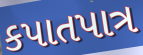
કપાતપાત્ર